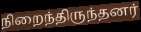
நிறைந்திருந்தனர்